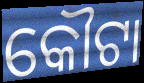
କୌଟା